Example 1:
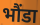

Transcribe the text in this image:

भौंडा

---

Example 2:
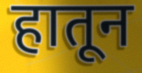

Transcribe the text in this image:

हातून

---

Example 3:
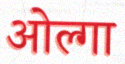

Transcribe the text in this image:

ओल्गा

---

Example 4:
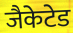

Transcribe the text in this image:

जैकेटेड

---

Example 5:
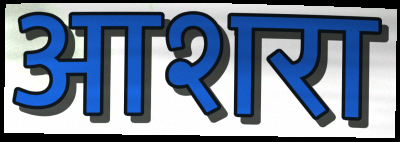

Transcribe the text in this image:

आशरा